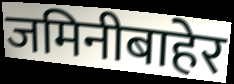
जमिनीबाहेर